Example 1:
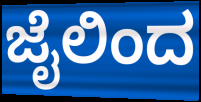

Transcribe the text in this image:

ಜೈಲಿಂದ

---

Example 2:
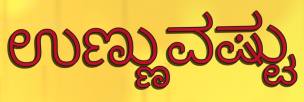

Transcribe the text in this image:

ಉಣ್ಣುವಷ್ಟು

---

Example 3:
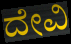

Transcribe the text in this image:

ದೇವಿ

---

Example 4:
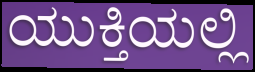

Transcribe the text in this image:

ಯುಕ್ತಿಯಲ್ಲಿ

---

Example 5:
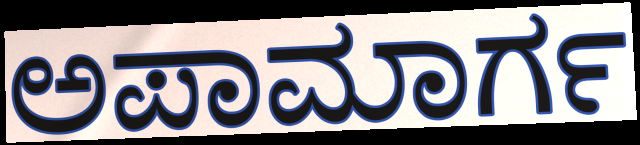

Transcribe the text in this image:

ಅಪಾಮಾರ್ಗ